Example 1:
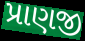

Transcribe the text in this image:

પ્રાણજી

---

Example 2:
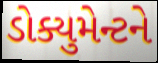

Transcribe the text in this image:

ડોક્યુમેન્ટને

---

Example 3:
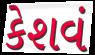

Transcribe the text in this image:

કેશવં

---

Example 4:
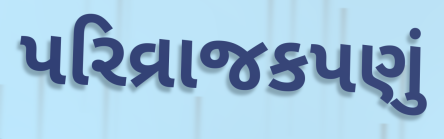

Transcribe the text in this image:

પરિવ્રાજકપણું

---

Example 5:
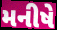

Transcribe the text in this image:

મનીષે